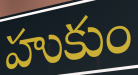
హుకుం